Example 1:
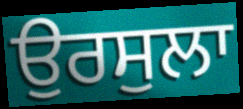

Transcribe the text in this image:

ਉਰਸੁਲਾ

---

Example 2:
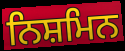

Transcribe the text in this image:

ਨਿਸ਼ਮਿਨ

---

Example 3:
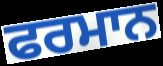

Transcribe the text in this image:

ਫਰਮਾਨ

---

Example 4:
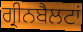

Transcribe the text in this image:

ਗ੍ਰੀਨਬੈਲਟਾਂ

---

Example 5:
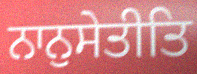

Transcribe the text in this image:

ਨਾਨੁਸੇਤੀਤਿ